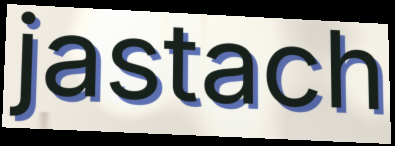
jastach